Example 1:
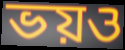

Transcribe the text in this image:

ভয়ও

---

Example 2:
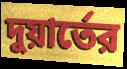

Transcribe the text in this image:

দুয়ার্তের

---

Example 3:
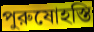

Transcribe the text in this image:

পুরুষোহস্তি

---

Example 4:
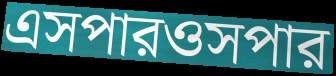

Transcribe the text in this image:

এসপারওসপার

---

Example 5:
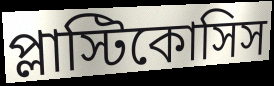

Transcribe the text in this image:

প্লাস্টিকোসিস